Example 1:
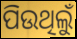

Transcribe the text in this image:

ପିଉଥିଲୁଁ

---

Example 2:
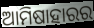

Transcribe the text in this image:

ଆମିଷାହାରର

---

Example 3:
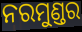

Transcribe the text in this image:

ନରମୁଣ୍ଡର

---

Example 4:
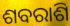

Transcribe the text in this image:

ଶବରାଶି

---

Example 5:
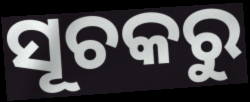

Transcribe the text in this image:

ସୂଚକରୁ